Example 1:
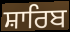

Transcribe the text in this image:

ਸ਼ਾਰਿਬ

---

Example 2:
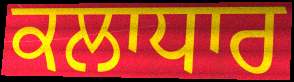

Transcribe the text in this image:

ਕਲਾਧਾਰ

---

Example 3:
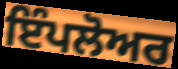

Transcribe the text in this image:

ਇੰਪਲੋਅਰ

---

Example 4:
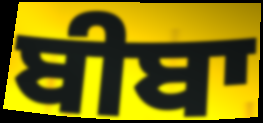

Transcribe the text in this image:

ਬੀਬਾ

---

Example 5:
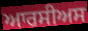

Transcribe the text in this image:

ਆਰਸੀਅਸ